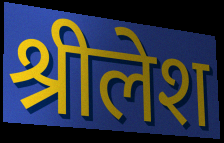
श्रीलेश